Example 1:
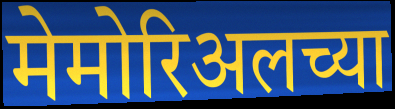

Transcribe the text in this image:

मेमोरिअलच्या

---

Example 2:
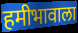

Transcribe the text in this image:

हमीभावाला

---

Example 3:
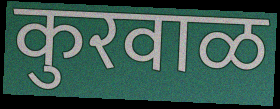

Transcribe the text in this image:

कुरवाळ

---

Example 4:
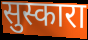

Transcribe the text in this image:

सुस्कारा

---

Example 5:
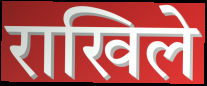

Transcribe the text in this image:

राखिले